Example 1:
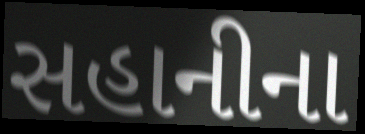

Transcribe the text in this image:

સહાનીના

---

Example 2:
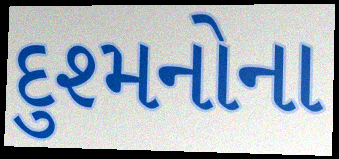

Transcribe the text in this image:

દુશ્મનોના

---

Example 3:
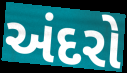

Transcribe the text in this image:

અંદરો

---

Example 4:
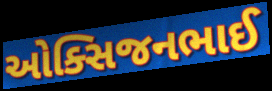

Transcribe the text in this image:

ઓક્સિજનભાઈ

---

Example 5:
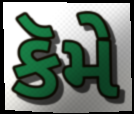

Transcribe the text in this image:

કૅમે